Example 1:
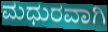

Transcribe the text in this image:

ಮಧುರವಾಗಿ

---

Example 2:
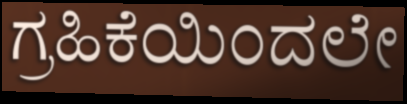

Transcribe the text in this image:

ಗ್ರಹಿಕೆಯಿಂದಲೇ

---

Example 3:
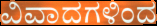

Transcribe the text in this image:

ವಿವಾದಗಳಿಂದ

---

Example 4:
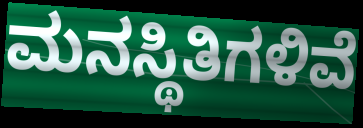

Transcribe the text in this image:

ಮನಸ್ಥಿತಿಗಳಿವೆ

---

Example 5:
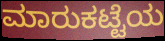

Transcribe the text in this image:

ಮಾರುಕಟ್ಟೆಯ